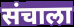
संचाला